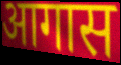
आगास